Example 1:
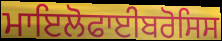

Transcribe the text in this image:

ਮਾਇਲੋਫਾਈਬਰੋਸਿਸ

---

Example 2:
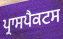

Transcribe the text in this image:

ਪ੍ਰਾਸਪੈਕਟਸ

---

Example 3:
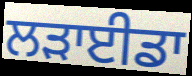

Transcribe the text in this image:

ਲੜਾਈਡਾ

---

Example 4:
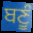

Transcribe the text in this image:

ਬਣੂੰ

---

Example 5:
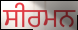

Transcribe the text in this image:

ਸੀਰਮਨ